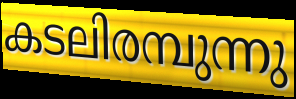
കടലിരമ്പുന്നു